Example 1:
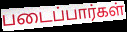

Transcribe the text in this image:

படைப்பார்கள்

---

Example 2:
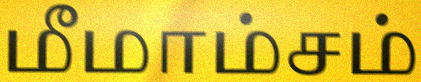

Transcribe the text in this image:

மீமாம்சம்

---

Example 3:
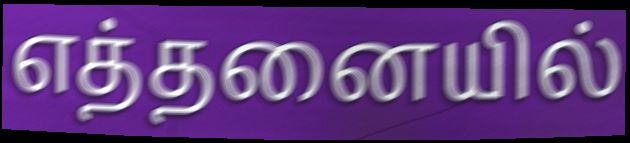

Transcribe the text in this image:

எத்தனையில்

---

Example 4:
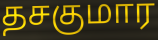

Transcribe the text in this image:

தசகுமார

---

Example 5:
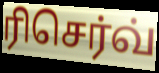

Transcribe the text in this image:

ரிசெர்வ்